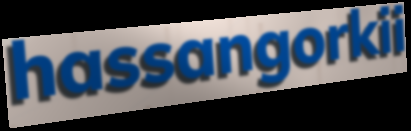
hassangorkii